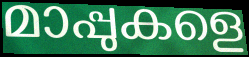
മാപ്പുകളെ